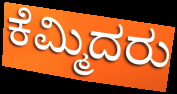
ಕೆಮ್ಮಿದರು